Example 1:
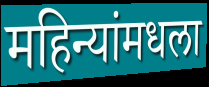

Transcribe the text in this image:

महिन्यांमधला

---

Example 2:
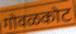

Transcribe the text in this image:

गोवळकोट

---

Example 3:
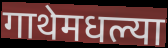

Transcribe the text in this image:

गाथेमधल्या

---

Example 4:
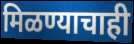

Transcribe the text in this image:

मिळण्याचाही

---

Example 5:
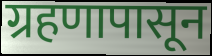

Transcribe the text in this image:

ग्रहणापासून